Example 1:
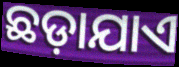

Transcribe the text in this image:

ଛଡ଼ାଯାଏ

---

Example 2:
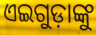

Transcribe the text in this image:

ଏଇଗୁଡ଼ାଙ୍କୁ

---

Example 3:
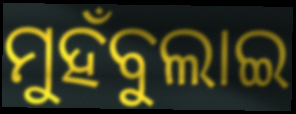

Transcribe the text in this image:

ମୁହଁବୁଲାଇ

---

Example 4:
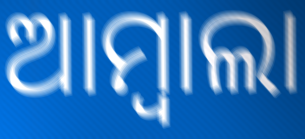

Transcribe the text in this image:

ଆମ୍ବାଲା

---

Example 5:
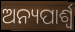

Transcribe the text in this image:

ଅନ୍ୟପାର୍ଶ୍ୱ